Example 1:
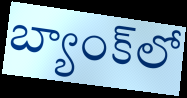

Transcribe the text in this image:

బ్యాంక్‌లో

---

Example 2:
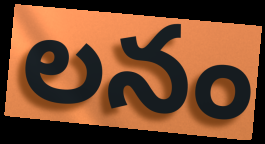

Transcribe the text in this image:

లనం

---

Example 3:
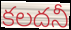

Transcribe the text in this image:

కలదనీ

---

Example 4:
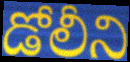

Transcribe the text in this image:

డోలీని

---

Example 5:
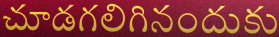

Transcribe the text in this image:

చూడగలిగినందుకు